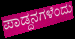
ಪಾಡ್ದನಗಳೆಂದು